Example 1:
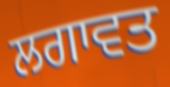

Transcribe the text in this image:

ਲਗਾਵਤ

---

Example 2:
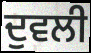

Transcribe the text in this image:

ਦੁਵਲੀ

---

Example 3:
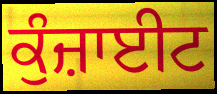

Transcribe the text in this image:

ਕੁੰਜ਼ਾਈਟ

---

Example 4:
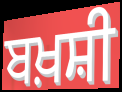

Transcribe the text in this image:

ਬਖ਼ਸ਼ੀ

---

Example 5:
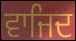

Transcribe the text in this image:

ਵਾਜਿਦ